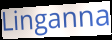
Linganna